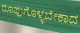
ರೂಪುಗೊಳ್ಳಬೇಕಾದ